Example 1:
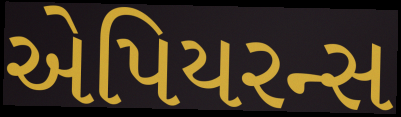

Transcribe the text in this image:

એપિયરન્સ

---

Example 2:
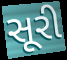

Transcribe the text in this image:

સૂરી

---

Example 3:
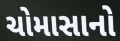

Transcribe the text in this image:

ચોમાસાનો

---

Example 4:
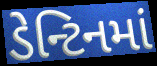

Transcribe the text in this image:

ડેન્ટિનમાં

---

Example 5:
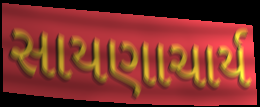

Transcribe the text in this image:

સાયણાચાર્ય